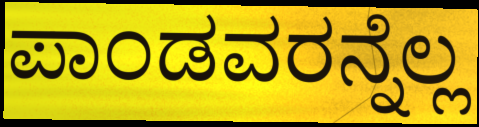
ಪಾಂಡವರನ್ನೆಲ್ಲ